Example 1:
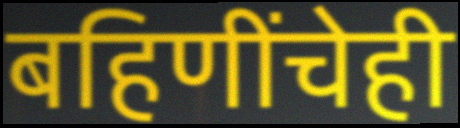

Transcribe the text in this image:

बहिणींचेही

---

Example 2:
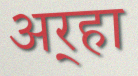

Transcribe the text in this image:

अर्हा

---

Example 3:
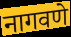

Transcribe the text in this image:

नागवणे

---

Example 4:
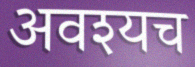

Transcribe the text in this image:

अवश्यच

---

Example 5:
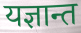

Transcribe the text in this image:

यज्ञान्त